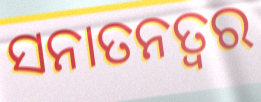
ସନାତନତ୍ୱର